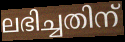
ലഭിച്ചതിന്